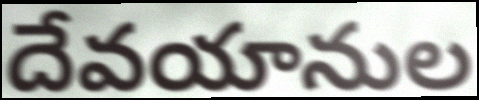
దేవయానుల